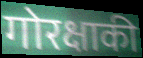
गोरक्षाकी